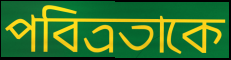
পবিত্রতাকে